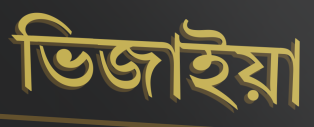
ভিজাইয়া